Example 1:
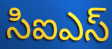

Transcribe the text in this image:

సిఐఎస్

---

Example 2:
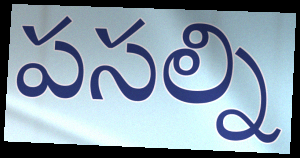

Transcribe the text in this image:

పసల్ని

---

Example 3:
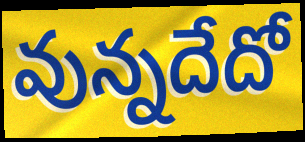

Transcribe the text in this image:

వున్నదేదో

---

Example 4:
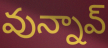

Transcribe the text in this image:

వున్నావ్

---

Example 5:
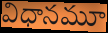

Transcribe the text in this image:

విధానమూ